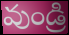
వుండ్రి